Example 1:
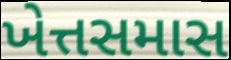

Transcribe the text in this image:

ખેત્તસમાસ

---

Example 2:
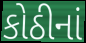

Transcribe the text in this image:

કોઠીનાં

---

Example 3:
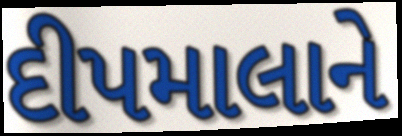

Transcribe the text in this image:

દીપમાલાને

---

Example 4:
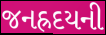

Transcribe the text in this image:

જનહ્રદયની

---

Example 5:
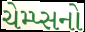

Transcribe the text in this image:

ચેમ્પ્સનો